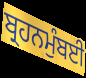
ਬ੍ਰਹਨਮੁੰਬਈ